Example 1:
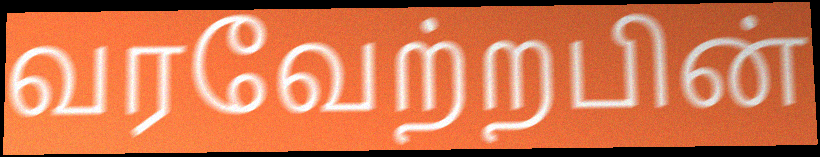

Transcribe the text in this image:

வரவேற்றபின்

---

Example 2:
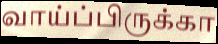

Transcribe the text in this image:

வாய்ப்பிருக்கா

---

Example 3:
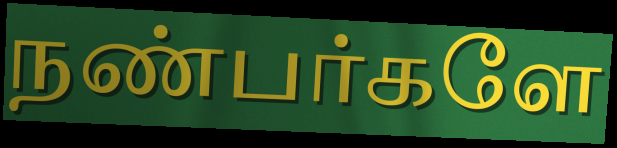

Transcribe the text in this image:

நண்பர்களே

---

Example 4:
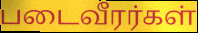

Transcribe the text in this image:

படைவீரர்கள்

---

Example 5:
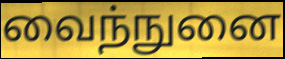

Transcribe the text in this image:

வைந்நுனை